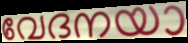
വേദനയാ